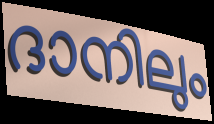
ദാനിലും